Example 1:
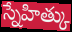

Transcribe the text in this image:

స్నేహిత్కు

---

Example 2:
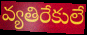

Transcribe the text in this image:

వ్యతిరేకులే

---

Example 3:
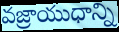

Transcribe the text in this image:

వజ్రాయుధాన్ని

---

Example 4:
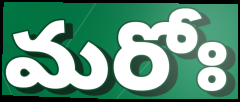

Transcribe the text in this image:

మరోః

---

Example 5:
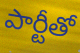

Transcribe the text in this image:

పార్టీతో